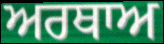
ਅਰਥਾਅ